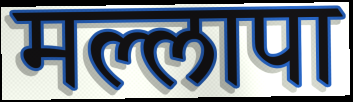
मल्लापा